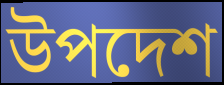
উপদেশ